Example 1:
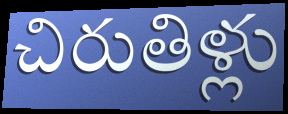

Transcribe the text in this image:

చిరుతిళ్లు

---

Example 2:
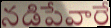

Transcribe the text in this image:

నడిపేవారే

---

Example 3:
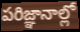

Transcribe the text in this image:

పరిజ్ఞానాల్లో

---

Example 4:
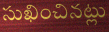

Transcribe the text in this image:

సుఖించినట్లు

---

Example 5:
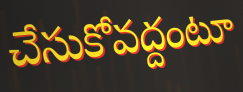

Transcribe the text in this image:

చేసుకోవద్దంటూ